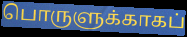
பொருளுக்காகப்